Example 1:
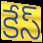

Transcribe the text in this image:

కేస్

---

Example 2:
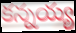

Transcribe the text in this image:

కన్నయ్య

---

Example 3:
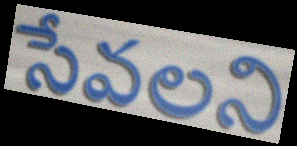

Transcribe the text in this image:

సేవలని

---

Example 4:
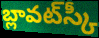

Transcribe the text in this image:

బ్లావట్‌స్కీ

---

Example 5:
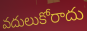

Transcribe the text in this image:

వదులుకోరాదు